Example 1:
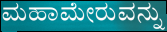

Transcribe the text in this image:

ಮಹಾಮೇರುವನ್ನು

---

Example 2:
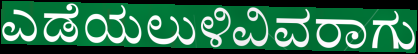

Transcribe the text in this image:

ಎಡೆಯಲುಳಿವಿವರಾಗು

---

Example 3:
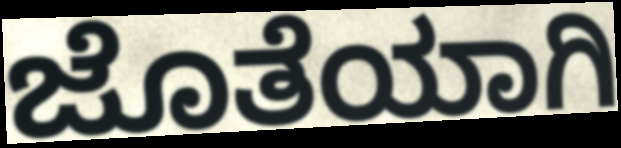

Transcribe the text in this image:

ಜೊತೆಯಾಗಿ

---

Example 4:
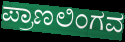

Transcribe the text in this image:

ಪ್ರಾಣಲಿಂಗವ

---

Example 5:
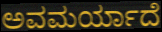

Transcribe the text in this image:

ಅವಮರ್ಯಾದೆ